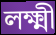
লক্ষ্মী